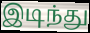
இடிந்து